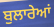
ਬੁਲਾਰੇਆਂ